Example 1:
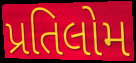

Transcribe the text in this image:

પ્રતિલોમ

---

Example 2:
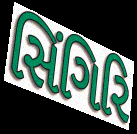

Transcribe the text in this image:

સિંગિરિ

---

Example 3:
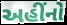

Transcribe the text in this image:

અહીંનો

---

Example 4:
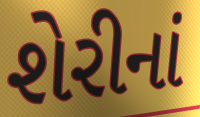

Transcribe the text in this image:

શેરીનાં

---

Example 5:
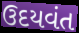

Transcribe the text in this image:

ઉદયવંત